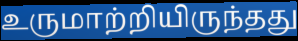
உருமாற்றியிருந்தது